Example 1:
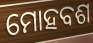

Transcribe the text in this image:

ମୋହବଶ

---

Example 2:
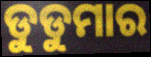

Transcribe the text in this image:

ଡୁଡୁମାର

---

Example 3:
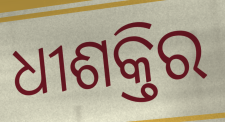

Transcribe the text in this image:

ଧୀଶକ୍ତିର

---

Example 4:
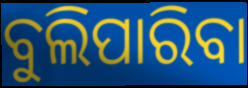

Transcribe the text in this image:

ବୁଲିପାରିବା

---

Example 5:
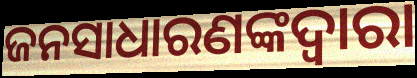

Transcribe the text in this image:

ଜନସାଧାରଣଙ୍କଦ୍ବାରା